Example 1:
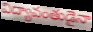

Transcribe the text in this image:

విద్యావంతుడైనా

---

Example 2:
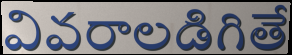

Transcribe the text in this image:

వివరాలడిగితే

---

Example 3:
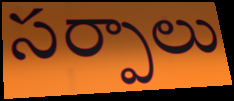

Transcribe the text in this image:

సర్పాలు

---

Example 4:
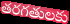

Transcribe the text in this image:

తరగతులకు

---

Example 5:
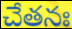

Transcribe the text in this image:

చేతనః